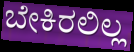
ಬೇಕಿರಲಿಲ್ಲ